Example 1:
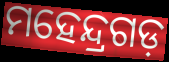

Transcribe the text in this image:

ମହେନ୍ଦ୍ରଗଡ଼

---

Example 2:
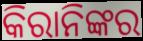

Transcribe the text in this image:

କିରାନିଙ୍କର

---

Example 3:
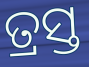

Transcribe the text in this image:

ତ୍ରସ୍ତ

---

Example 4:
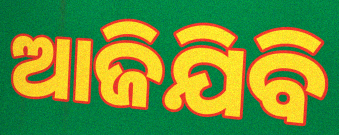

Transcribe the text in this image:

ଆଜିଯିବି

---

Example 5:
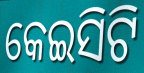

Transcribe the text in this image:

କେଇସିଟି